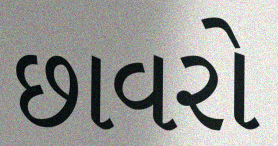
છાવરો